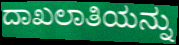
ದಾಖಲಾತಿಯನ್ನು